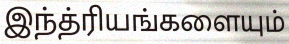
இந்த்ரியங்களையும்